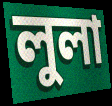
লুলা